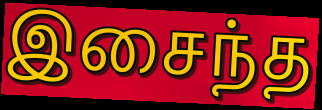
இசைந்த